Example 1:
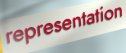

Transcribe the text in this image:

representation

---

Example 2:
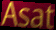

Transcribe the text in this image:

Asat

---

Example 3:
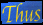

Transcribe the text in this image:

Thus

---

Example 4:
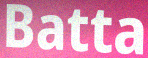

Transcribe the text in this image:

Batta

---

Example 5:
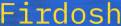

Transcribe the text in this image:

Firdosh